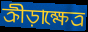
ক্রীড়াক্ষেত্র